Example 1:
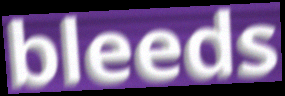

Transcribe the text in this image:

bleeds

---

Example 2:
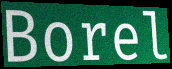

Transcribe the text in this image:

Borel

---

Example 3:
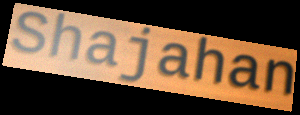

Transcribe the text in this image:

Shajahan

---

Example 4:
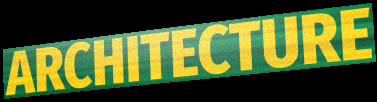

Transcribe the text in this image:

ARCHITECTURE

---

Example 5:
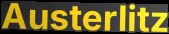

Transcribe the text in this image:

Austerlitz